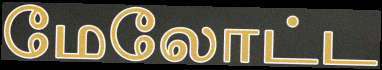
மேலோட்ட